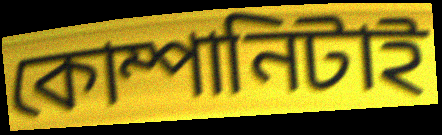
কোম্পানিটাই